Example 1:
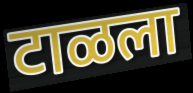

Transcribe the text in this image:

टाळला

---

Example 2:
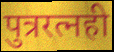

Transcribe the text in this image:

पुत्ररत्नही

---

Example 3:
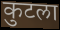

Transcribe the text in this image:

कुटला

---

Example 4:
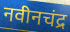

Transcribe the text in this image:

नवीनचंद्र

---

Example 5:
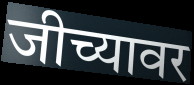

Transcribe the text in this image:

जीच्यावर